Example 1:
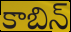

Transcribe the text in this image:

కాబిన్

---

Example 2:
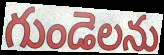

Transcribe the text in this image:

గుండెలను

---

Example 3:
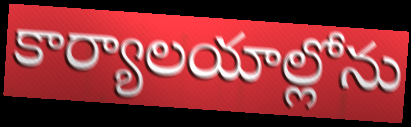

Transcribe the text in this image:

కార్యాలయాల్లోను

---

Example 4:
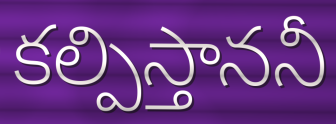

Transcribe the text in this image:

కల్పిస్తాననీ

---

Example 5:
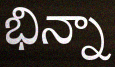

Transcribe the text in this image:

భిన్నా